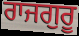
ਰਾਜਗੁਰੂ